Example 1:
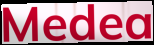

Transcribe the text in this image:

Medea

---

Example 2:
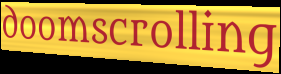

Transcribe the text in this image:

doomscrolling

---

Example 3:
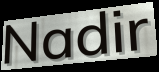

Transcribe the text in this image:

Nadir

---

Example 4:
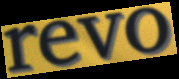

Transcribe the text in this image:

revo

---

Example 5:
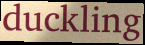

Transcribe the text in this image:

duckling